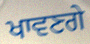
ਖਾਵਣਗੇ